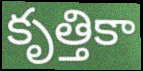
కృత్తికా